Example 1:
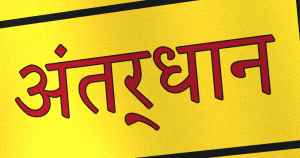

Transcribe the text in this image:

अंतर्धान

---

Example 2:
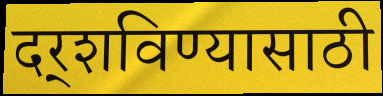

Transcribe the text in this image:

दर्शविण्यासाठी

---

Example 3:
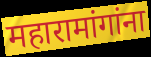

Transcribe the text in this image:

महारामांगांना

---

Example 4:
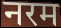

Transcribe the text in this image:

नरम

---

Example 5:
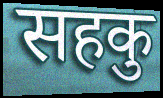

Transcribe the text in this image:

सहकु